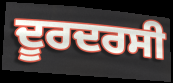
ਦੂਰਦਰਸੀ